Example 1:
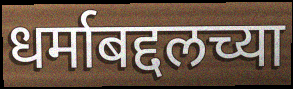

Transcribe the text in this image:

धर्माबद्दलच्या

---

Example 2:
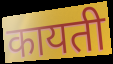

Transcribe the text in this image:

कायती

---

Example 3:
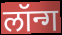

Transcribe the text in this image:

लॉन्ग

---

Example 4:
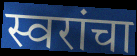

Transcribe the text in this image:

स्वरांचा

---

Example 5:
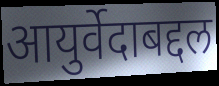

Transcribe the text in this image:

आयुर्वेदाबद्दल